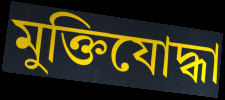
মুক্তিযোদ্ধা